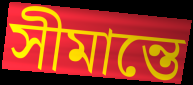
সীমান্তে